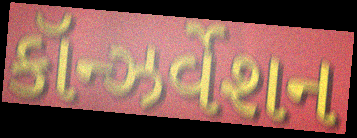
કૉન્ઝર્વેશન